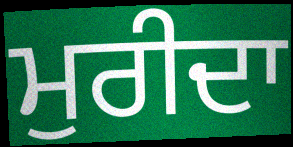
ਮੁਰੀਦਾ